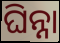
ଘିନ୍ନା